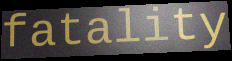
fatality